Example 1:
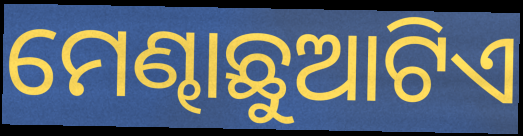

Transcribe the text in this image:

ମେଣ୍ଢାଛୁଆଟିଏ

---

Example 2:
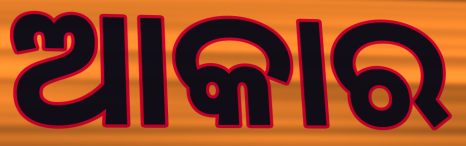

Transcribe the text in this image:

ଆକାର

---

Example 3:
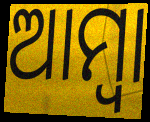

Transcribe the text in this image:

ଆମ୍ବା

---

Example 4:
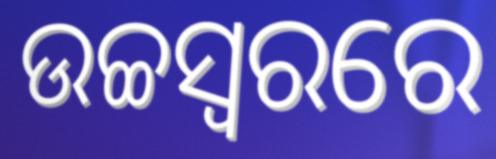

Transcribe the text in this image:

ଉଚ୍ଚସ୍ୱରରେ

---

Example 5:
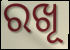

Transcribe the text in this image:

ରଖୂ